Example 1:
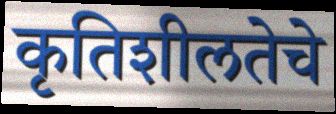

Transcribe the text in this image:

कृतिशीलतेचे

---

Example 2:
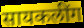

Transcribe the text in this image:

सायकलींग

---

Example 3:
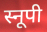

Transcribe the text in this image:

स्नूपी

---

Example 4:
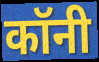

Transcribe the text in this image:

कॉनी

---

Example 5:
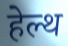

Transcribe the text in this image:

हेल्थ